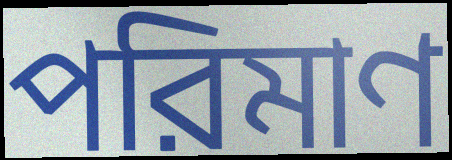
পরিমাণ